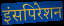
इंसपिरेशन